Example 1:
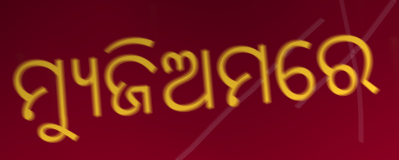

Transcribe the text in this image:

ମ୍ୟୁଜିଅମରେ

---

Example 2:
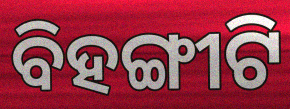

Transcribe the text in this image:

ବିହଙ୍ଗୀଟି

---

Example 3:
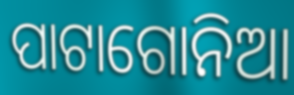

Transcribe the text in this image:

ପାଟାଗୋନିଆ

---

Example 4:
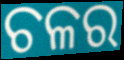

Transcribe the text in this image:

ଚଳର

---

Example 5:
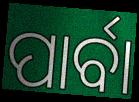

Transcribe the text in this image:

ପାର୍ବା